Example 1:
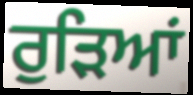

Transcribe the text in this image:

ਰੁੜਿਆਂ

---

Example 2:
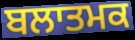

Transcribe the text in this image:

ਬਲਾਤਮਕ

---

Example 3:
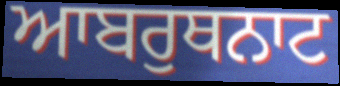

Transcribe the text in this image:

ਆਬਰੁਥਨਾਟ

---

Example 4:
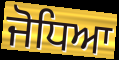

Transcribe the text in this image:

ਜੋਧਿਆ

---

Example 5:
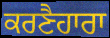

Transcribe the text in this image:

ਕਰਣੈਹਾਰਾ